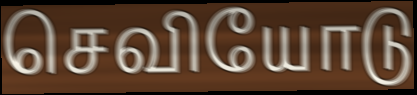
செவியோடு